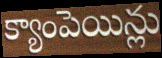
క్యాంపెయిన్లు